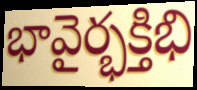
భావైర్భక్తిభి